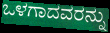
ಒಳಗಾದವರನ್ನು